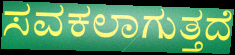
ಸವಕಲಾಗುತ್ತದೆ